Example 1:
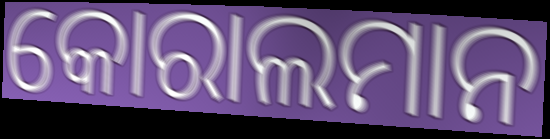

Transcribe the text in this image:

କୋରାଲମାନ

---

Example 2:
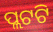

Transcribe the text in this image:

ପ୍ଲଟଟି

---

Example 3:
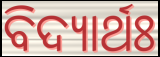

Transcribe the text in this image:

ବିଦ୍ୟାର୍ଥଃ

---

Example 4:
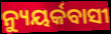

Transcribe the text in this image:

ନ୍ୟୁୟର୍କବାସୀ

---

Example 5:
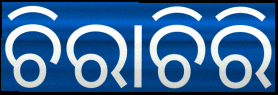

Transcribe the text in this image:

ଚିରାଚିରି